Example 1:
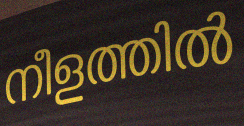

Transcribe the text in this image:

നീളത്തിൽ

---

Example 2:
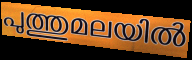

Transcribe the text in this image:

പുത്തുമലയിൽ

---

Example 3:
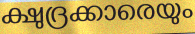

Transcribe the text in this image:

ക്ഷുദ്രക്കാരെയും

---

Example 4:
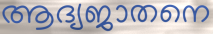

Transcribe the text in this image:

ആദ്യജാതനെ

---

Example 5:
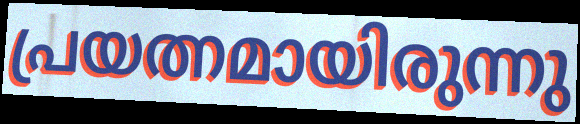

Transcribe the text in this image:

പ്രയത്നമായിരുന്നു